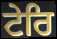
ਟੇਰਿ